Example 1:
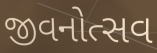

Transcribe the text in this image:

જીવનોત્સવ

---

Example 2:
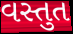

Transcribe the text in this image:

વસ્તુત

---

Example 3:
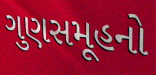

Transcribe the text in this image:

ગુણસમૂહનો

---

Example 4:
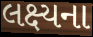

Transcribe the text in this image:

લક્ષ્યના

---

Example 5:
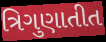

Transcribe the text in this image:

ત્રિગુણાતીત